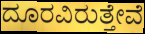
ದೂರವಿರುತ್ತೇವೆ